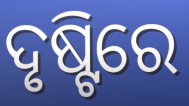
ଦୃଷ୍ଟିରେ